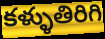
కళ్ళుతిరిగి